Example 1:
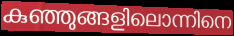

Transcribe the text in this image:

കുഞ്ഞുങ്ങളിലൊന്നിനെ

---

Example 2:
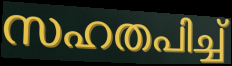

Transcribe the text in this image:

സഹതപിച്ച്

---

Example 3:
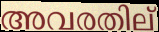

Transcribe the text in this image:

അവരതില്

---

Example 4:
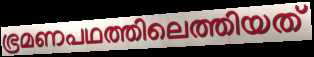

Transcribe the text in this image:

ഭ്രമണപഥത്തിലെത്തിയത്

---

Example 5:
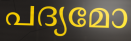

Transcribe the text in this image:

പദ്യമോ